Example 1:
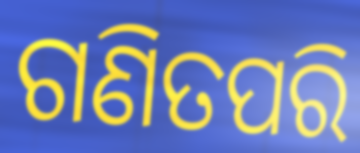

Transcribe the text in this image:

ଗଣିତପରି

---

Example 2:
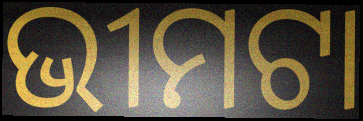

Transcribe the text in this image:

ଭୀମଟା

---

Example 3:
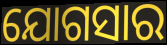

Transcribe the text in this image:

ଯୋଗସାର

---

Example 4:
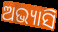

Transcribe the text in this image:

ଅଭ୍ୟାସି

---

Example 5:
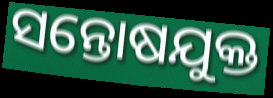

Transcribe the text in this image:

ସନ୍ତୋଷଯୁକ୍ତ